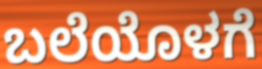
ಬಲೆಯೊಳಗೆ